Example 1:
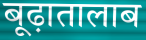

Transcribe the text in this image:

बूढ़ातालाब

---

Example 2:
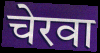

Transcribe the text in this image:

चेरवा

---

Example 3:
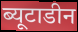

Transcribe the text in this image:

ब्यूटाडीन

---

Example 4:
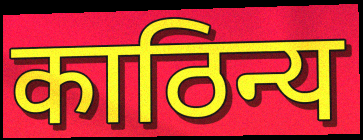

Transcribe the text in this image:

काठिन्य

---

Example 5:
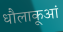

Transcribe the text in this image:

धौलाकूआं